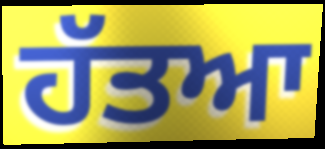
ਹੱਤਆ